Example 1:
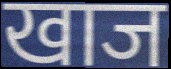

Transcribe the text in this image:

खाज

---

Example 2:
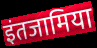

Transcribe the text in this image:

इंतजामिया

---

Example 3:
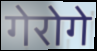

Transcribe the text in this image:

गेरोगे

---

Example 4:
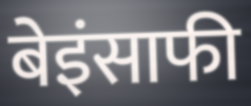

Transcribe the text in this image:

बेइंसाफी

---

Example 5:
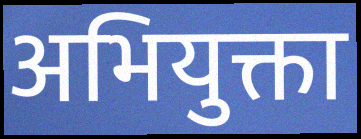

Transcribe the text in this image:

अभियुक्ता